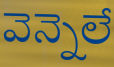
వెన్నెలే